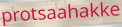
protsaahakke